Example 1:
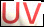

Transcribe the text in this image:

UV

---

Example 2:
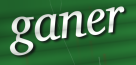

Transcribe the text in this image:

ganer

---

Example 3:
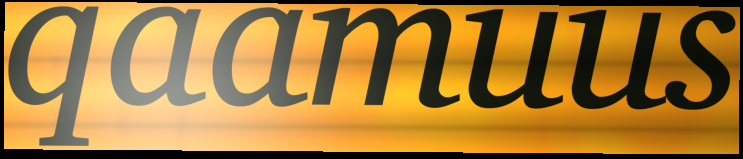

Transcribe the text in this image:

qaamuus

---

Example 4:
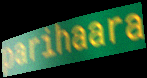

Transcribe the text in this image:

parihaara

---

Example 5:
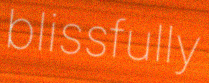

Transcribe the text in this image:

blissfully